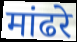
मांढरे